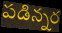
పడిన్నర